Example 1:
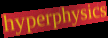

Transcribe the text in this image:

hyperphysics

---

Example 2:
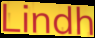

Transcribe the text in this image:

Lindh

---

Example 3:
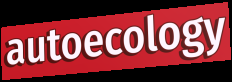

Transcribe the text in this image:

autoecology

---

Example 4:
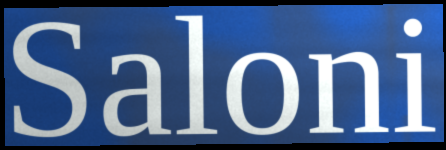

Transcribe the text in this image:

Saloni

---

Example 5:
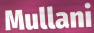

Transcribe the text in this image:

Mullani